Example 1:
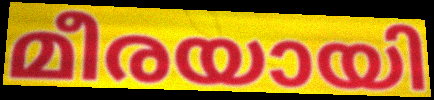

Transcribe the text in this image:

മീരയായി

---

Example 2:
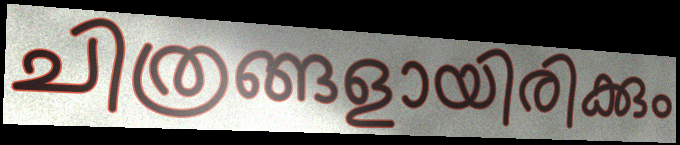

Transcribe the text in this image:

ചിത്രങ്ങളായിരിക്കും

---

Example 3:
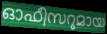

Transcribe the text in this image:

ഓഫീസറുമായ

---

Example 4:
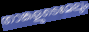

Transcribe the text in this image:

താങ്കളുടെമേലും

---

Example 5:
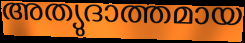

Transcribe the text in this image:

അത്യുദാത്തമായ